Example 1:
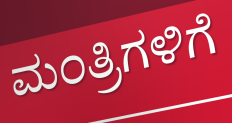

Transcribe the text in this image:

ಮಂತ್ರಿಗಳಿಗೆ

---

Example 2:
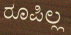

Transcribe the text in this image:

ರೂಪಿಲ್ಲ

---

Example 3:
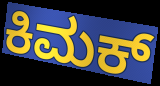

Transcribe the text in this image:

ಕಿಮಕ್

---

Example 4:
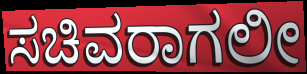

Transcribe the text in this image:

ಸಚಿವರಾಗಲೀ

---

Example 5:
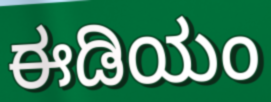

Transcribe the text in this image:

ಈಡಿಯಂ